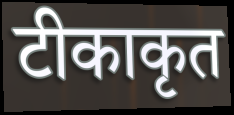
टीकाकृत